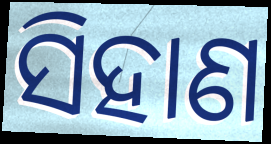
ସିହାଣ